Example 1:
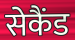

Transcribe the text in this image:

सेकैंड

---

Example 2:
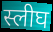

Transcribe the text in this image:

स्लीघ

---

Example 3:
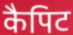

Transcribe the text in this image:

कैपिट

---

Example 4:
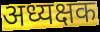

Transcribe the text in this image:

अध्यक्षक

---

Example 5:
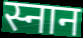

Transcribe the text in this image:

स्‍नान